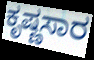
ಕೃಷ್ಣಸಾರ